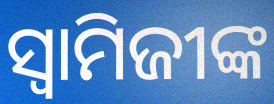
ସ୍ବାମିଜୀଙ୍କ